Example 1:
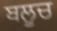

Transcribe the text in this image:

ਬਲੂਚ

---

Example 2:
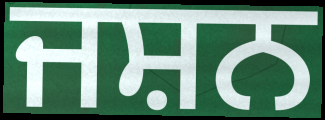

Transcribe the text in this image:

ਜਸ਼ਨ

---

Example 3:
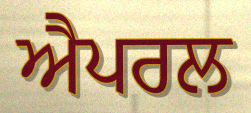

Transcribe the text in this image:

ਐਪਰਲ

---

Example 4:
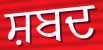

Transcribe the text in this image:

ਸ਼ਬਦ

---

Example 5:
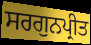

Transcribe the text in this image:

ਸਰਗੁਨਪ੍ਰੀਤ